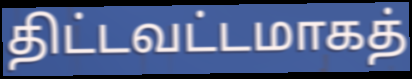
திட்டவட்டமாகத்